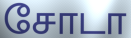
சோடா